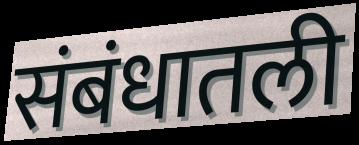
संबंधातली